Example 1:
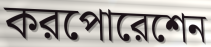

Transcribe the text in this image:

করপোরেশেন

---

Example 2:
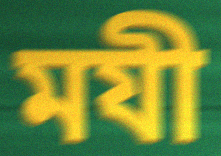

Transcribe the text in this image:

মযী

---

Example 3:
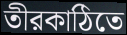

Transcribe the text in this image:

তীরকাঠিতে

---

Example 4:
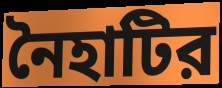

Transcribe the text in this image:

নৈহাটির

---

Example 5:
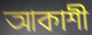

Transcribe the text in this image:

আকাশী